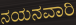
ನಯನವಾರಿ